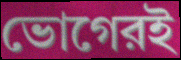
ভোগেরই